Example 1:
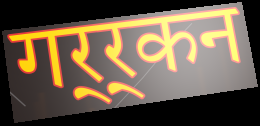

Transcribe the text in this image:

गर्र्कन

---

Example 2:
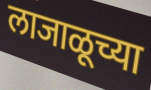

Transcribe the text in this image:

लाजाळूच्या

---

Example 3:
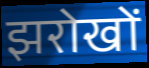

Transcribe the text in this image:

झरोखों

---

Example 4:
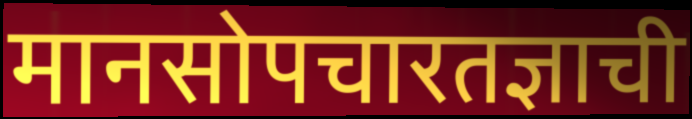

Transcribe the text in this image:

मानसोपचारतज्ञाची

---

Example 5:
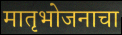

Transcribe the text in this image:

मातृभोजनाचा